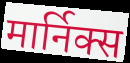
मार्निक्स